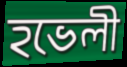
হভেলী